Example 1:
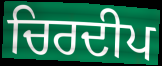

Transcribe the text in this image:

ਚਿਰਦੀਪ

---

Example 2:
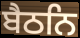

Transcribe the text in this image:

ਬੈਠਨਿ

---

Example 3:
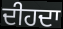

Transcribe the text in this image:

ਦੀਹਦਾ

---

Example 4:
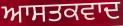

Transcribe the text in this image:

ਆਸਤਕਵਾਦ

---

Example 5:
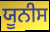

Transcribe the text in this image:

ਯੂਨੀਸ